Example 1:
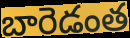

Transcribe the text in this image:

బారెడంత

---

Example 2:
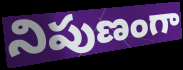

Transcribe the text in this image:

నిపుణంగా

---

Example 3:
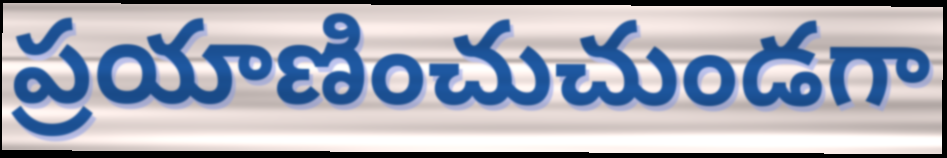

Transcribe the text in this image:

ప్రయాణించుచుండగా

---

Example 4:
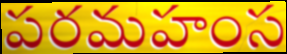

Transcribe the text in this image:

పరమహంస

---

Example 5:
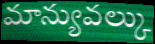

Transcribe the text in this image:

మాన్యువల్కు